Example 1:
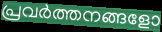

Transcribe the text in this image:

പ്രവർത്തനങ്ങളോ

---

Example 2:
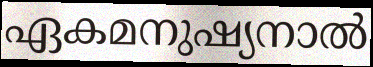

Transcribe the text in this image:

ഏകമനുഷ്യനാൽ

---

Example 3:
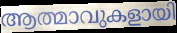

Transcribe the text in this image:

ആത്മാവുകളായി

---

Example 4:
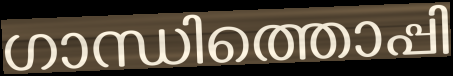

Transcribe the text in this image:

ഗാന്ധിത്തൊപ്പി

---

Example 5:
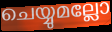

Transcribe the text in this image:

ചെയ്യുമല്ലോ